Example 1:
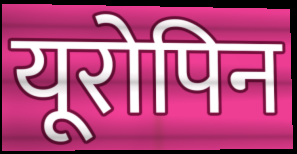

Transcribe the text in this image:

यूरोपिन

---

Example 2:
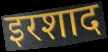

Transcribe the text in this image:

इरशाद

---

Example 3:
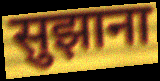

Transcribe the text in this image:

सुझाना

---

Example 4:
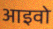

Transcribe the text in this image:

आइवो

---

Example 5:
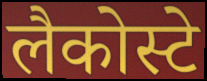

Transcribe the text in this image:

लैकोस्टे